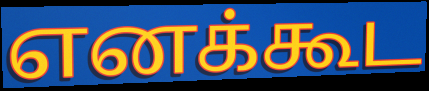
எனக்கூட